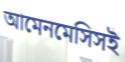
আমেনমেসিসই